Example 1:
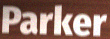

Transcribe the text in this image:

Parker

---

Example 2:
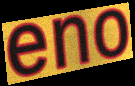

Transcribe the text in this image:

eno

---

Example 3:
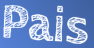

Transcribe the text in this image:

Pais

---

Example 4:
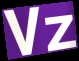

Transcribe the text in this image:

Vz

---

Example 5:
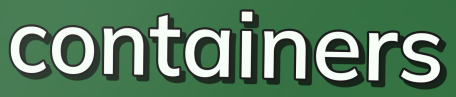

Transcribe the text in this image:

containers